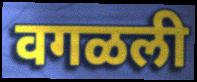
वगळली